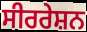
ਸੀਰਰੇਸ਼ਨ